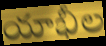
యాభీల